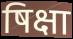
षिक्षा